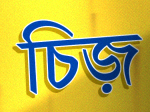
চিজ়